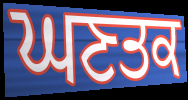
ਘਣਤਕ